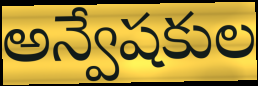
అన్వేషకుల